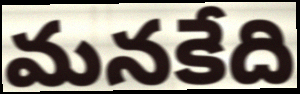
మనకేది